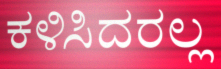
ಕಳಿಸಿದರಲ್ಲ